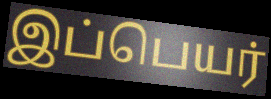
இப்பெயர்